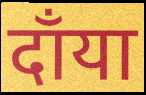
दाँया